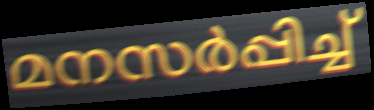
മനസർപ്പിച്ച്